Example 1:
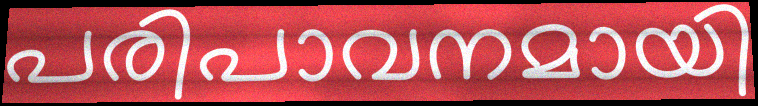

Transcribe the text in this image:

പരിപാവനമായി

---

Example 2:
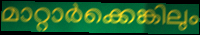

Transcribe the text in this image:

മാറ്റാർക്കെങ്കിലും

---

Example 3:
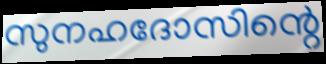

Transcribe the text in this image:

സുനഹദോസിന്റെ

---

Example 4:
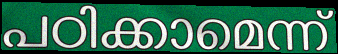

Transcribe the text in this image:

പഠിക്കാമെന്ന്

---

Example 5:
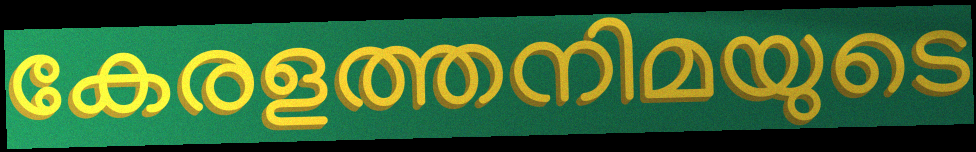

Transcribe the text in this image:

കേരളത്തനിമയുടെ